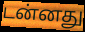
டன்னது